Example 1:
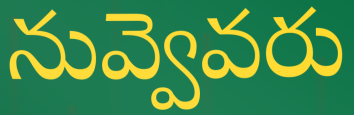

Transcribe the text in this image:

నువ్వెవరు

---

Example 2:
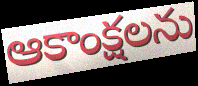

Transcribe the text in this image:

ఆకాంక్షలను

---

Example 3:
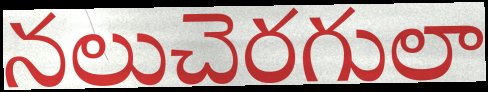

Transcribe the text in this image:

నలుచెరగులా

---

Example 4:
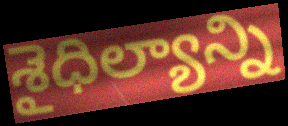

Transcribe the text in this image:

శైధిల్యాన్ని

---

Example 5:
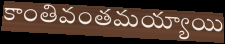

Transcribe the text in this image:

కాంతివంతమయ్యాయి